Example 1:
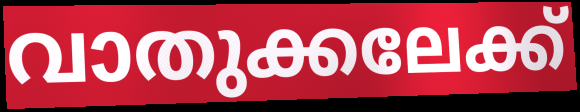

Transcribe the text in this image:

വാതുക്കലേക്ക്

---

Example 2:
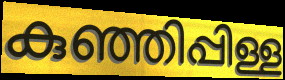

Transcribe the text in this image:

കുഞ്ഞിപ്പിള്ള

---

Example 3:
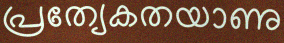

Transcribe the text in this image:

പ്രത്യേകതയാണു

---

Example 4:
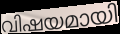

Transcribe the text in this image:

വിഷയമായി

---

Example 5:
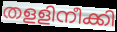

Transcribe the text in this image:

തളളിനീക്കി